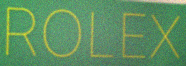
ROLEX